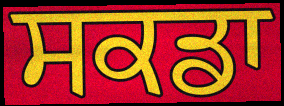
ਸਕਡਾ